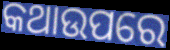
କଥାଉପରେ